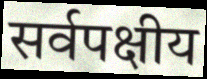
सर्वपक्षीय